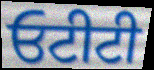
ਓਟੀਟੀ